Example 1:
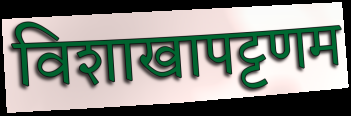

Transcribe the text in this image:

विशाखापट्टणम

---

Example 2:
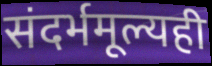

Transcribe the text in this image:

संदर्भमूल्यही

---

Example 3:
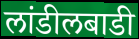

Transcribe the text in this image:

लांडीलबाडी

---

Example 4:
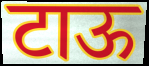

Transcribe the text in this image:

टाऊ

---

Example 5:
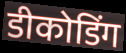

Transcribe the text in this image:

डीकोडिंग